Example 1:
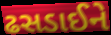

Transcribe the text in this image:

ઢસડાઈને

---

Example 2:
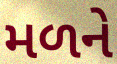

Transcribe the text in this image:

મળને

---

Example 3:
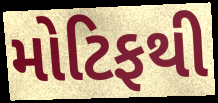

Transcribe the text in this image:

મોટિફથી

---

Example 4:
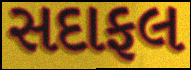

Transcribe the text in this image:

સદાફલ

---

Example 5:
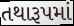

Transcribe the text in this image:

તથારૂપમાં